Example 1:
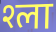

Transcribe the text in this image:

श्ला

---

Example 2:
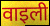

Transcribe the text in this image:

वाइली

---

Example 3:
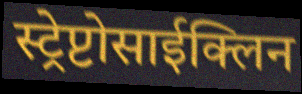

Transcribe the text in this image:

स्ट्रेप्टोसाईक्लिन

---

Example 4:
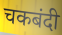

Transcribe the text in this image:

चकबंदी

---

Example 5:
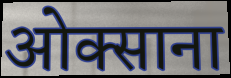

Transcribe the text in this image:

ओक्साना